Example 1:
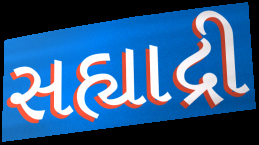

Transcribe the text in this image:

સહ્યાદ્રી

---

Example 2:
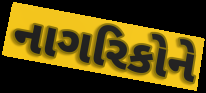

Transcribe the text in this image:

નાગરિકોને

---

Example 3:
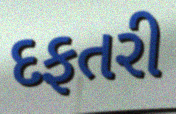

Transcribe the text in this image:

દફતરી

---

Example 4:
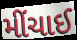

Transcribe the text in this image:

મીંચાઈ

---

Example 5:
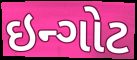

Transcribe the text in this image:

ઇન્ગોટ